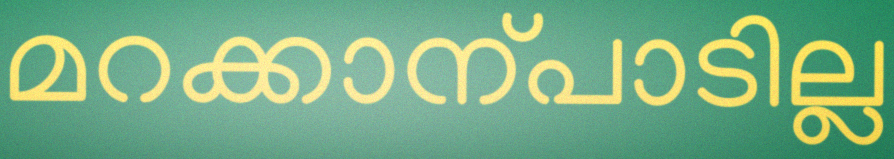
മറക്കാന്പാടില്ല